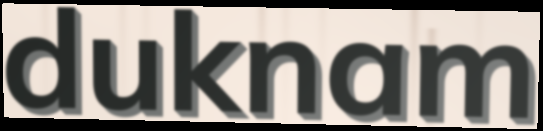
duknam